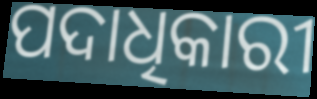
ପଦାଧିକାରୀ